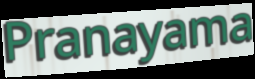
Pranayama